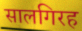
सालगिरह